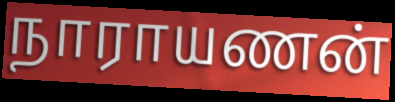
நாராயணன்